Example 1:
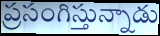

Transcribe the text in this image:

ప్రసంగిస్తున్నాడు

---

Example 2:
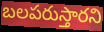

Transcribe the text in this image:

బలపరుస్తారని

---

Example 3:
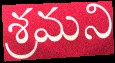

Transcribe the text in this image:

శ్రమని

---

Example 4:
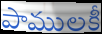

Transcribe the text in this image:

పాములకీ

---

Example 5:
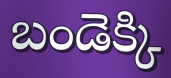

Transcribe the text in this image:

బండెక్కి